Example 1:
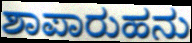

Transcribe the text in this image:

ಶಾಪಾರುಹನು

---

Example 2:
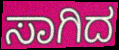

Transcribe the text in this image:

ಸಾಗಿದ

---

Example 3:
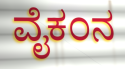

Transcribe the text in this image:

ವೈಕಂನ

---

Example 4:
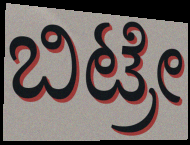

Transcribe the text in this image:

ಬಿಟ್ರೇ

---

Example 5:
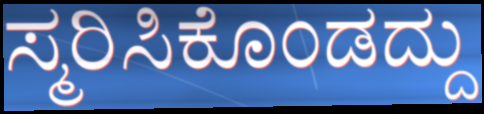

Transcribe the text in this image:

ಸ್ಮರಿಸಿಕೊಂಡದ್ದು